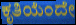
ಕೃತಿಯೆಂದೇ